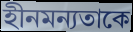
হীনমন্যতাকে